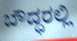
ಬೌದ್ಧರಲ್ಲಿ